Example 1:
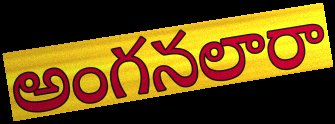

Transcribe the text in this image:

అంగనలారా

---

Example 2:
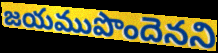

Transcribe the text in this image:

జయముపొందెనని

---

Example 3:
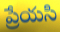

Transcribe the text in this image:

ప్రేయసి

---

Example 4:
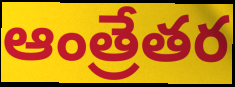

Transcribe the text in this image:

ఆంత్రేతర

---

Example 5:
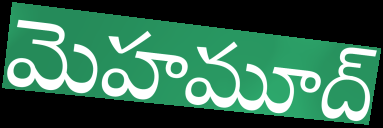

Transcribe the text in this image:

మెహమూద్